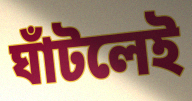
ঘাঁটলেই